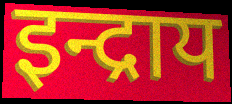
इन्द्राय